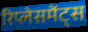
रिप्लेसमेंट्स